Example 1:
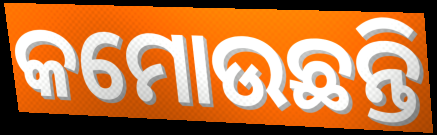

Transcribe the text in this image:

କମୋଉଛନ୍ତି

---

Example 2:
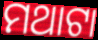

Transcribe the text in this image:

ମଥାଟା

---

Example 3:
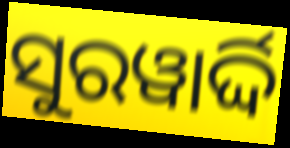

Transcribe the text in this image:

ସୁରୱାର୍ଦ୍ଦି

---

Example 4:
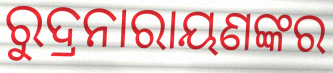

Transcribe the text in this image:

ରୁଦ୍ରନାରାୟଣଙ୍କର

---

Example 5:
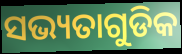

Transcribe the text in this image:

ସଭ୍ୟତାଗୁଡିକ